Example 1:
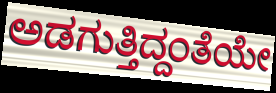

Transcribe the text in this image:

ಅಡಗುತ್ತಿದ್ದಂತೆಯೇ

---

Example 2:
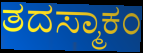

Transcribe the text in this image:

ತದಸ್ಮಾಕಂ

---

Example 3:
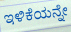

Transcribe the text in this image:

ಇಳಿಕೆಯನ್ನೇ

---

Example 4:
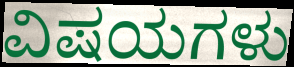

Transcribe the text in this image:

ವಿಷಯಗಳು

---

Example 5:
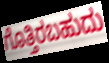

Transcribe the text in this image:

ಗೊತ್ತಿರಬಹುದು